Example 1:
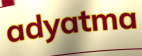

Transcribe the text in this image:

adyatma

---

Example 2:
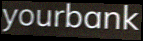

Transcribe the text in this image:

yourbank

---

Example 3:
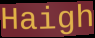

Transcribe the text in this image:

Haigh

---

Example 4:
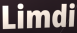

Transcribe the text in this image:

Limdi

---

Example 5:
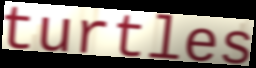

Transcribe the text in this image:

turtles